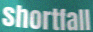
shortfall